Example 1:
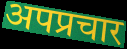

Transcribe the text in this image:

अपप्रचार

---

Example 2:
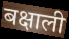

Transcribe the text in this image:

बक्षाली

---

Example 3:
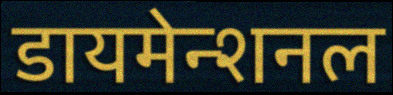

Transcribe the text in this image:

डायमेन्शनल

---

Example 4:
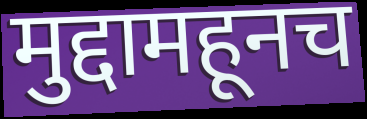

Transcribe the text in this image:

मुद्दामहूनच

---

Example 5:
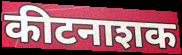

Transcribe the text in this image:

कीटनाशक